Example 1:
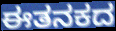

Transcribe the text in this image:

ಈತನಕದ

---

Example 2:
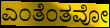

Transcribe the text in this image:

ಎಂತೆಂತವೋ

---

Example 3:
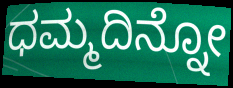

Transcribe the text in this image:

ಧಮ್ಮದಿನ್ನೋ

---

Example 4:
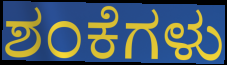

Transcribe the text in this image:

ಶಂಕೆಗಳು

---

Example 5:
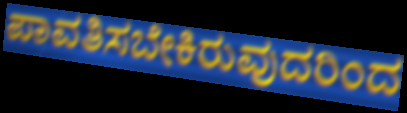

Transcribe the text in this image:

ಪಾವತಿಸಬೇಕಿರುವುದರಿಂದ